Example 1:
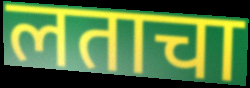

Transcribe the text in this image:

लताचा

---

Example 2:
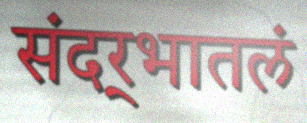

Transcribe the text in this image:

संदर्भातलं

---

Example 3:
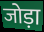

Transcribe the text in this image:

जोड़ा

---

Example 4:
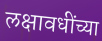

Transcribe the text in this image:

लक्षावधींच्या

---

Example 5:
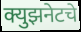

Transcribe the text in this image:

क्युझनेटचे